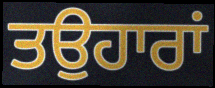
ਤਉਹਾਰਾਂ